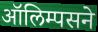
ऑलिम्पसने